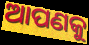
ଆପଣକୁ